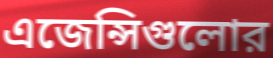
এজেন্সিগুলোর